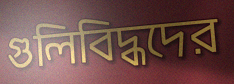
গুলিবিদ্ধদের